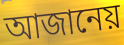
আজানেয়